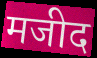
मजीद